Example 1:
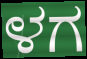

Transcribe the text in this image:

ಳಗ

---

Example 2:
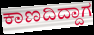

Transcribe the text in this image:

ಕಾಣದಿದ್ದಾಗ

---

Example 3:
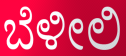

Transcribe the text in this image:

ಬೆಳೀಲಿ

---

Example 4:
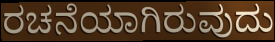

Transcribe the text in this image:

ರಚನೆಯಾಗಿರುವುದು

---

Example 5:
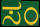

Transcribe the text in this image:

ಸಂ